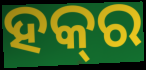
ହକ୍‌ର